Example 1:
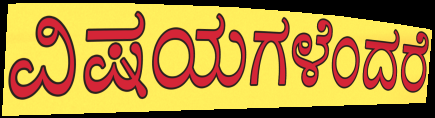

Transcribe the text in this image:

ವಿಷಯಗಳೆಂದರೆ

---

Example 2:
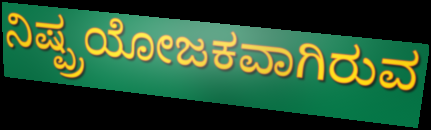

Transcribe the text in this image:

ನಿಷ್ಪ್ರಯೋಜಕವಾಗಿರುವ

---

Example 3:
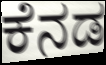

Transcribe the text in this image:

ಕೆನಡ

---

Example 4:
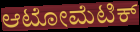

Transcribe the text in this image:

ಆಟೋಮೆಟಿಕ್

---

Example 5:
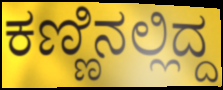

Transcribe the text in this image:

ಕಣ್ಣಿನಲ್ಲಿದ್ದ